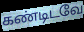
கண்டிடவே